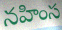
నహింస